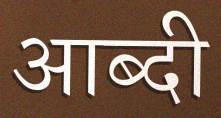
आब्दी